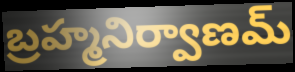
బ్రహ్మనిర్వాణమ్